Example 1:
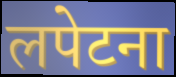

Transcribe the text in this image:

लपेटना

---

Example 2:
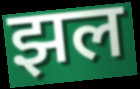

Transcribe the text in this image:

झल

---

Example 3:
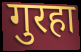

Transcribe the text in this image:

गुरहा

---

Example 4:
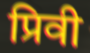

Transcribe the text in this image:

प्रिवी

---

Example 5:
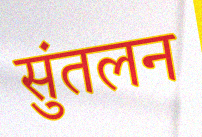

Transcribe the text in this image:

सुंतलन